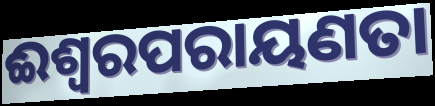
ଈଶ୍ୱରପରାୟଣତା